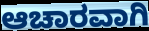
ಆಚಾರವಾಗಿ